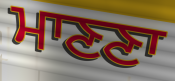
ਮਾਣਣਾ